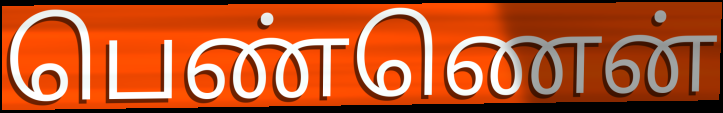
பெண்ணென்